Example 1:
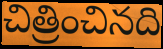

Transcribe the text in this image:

చిత్రించినది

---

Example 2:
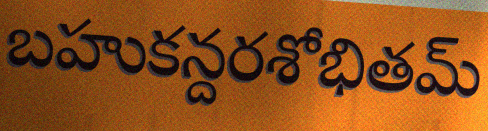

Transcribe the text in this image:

బహుకన్దరశోభితమ్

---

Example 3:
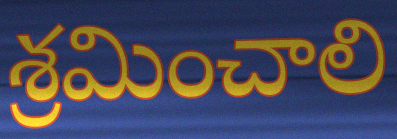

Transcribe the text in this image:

శ్రమించాలి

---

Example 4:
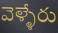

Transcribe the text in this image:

వెళ్ళేరు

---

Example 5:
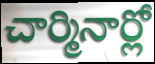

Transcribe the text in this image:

చార్మినార్లో